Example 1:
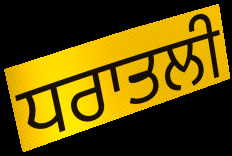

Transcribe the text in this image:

ਧਰਾਤਲੀ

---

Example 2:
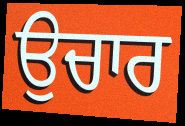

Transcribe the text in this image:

ਉਚਾਰ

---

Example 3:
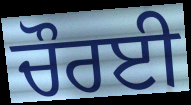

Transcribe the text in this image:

ਚੌਰਈ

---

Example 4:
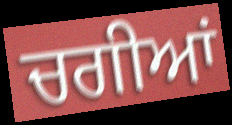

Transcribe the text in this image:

ਚਗੀਆਂ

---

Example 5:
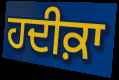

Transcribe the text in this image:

ਹਦੀਕ਼ਾ